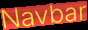
Navbar